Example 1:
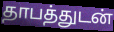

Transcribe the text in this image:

தாபத்துடன்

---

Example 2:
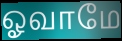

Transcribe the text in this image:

ஓவாமே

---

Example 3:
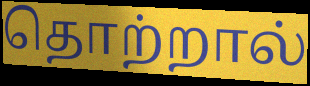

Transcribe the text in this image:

தொற்றால்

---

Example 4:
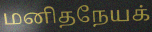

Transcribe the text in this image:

மனிதநேயக்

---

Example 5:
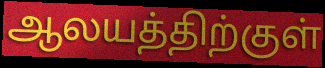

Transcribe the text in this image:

ஆலயத்திற்குள்